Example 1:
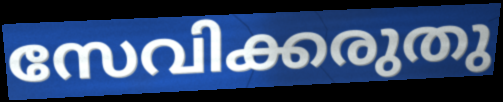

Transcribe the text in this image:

സേവിക്കരുതു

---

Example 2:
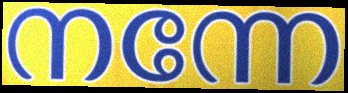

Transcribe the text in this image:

നന്നേ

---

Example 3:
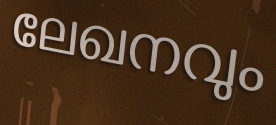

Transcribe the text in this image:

ലേഖനവും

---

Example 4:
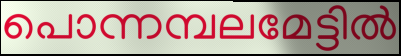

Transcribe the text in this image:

പൊന്നമ്പലമേട്ടിൽ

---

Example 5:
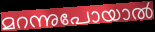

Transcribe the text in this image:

മറന്നുപോയാൽ